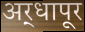
अर्धापूर